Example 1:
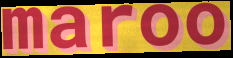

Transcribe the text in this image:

maroo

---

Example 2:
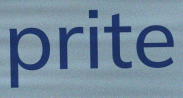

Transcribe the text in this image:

prite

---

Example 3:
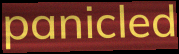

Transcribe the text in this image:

panicled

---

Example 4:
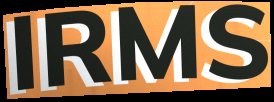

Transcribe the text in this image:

IRMS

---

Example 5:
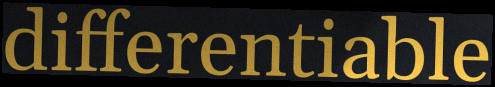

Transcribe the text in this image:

differentiable